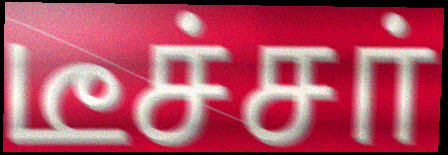
டீச்சர்